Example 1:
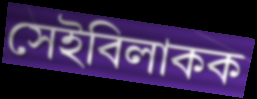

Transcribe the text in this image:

সেইবিলাকক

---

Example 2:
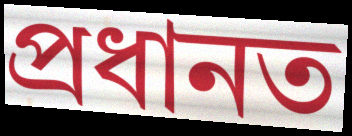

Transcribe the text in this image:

প্ৰধানত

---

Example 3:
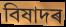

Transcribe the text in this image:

বিষাদৰ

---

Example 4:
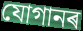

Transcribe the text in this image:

যোগানৰ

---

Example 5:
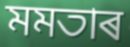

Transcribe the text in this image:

মমতাৰ